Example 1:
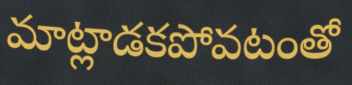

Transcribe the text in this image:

మాట్లాడకపోవటంతో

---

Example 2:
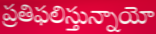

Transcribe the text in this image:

ప్రతిఫలిస్తున్నాయో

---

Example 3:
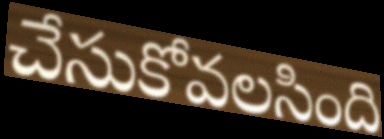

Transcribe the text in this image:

చేసుకోవలసింది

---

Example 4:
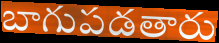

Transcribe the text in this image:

బాగుపడతారు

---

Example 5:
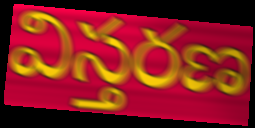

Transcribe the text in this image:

విస్తరణ